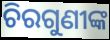
ଚିରଗୁଣୀଙ୍କ